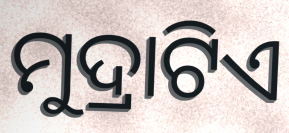
ମୁଦ୍ରାଟିଏ